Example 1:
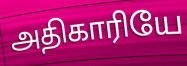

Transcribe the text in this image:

அதிகாரியே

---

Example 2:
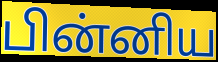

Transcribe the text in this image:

பின்னிய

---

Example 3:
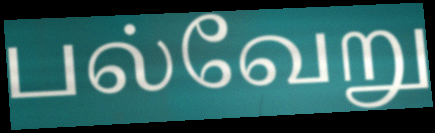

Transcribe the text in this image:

பல்வேறு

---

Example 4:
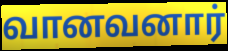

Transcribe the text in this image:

வானவனார்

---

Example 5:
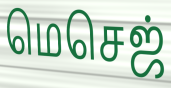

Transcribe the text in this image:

மெசெஜ்